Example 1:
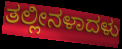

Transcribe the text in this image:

ತಲ್ಲೀನಳಾದಳು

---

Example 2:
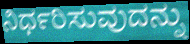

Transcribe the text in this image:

ನಿರ್ಧರಿಸುವುದನ್ನು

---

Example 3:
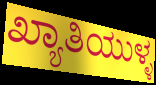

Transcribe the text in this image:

ಖ್ಯಾತಿಯುಳ್ಳ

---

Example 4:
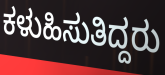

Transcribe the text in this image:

ಕಳುಹಿಸುತಿದ್ದರು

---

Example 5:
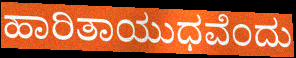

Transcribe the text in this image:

ಹಾರಿತಾಯುಧವೆಂದು